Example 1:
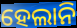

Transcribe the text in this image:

ହେଲାନି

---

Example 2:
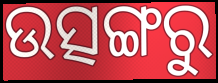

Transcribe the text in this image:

ଉତ୍ସଙ୍ଗରୁ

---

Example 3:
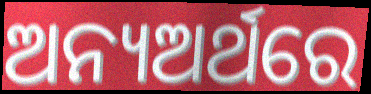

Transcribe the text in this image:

ଅନ୍ୟଅର୍ଥରେ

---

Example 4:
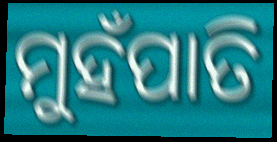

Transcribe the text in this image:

ମୁହଁପାତି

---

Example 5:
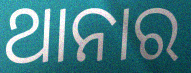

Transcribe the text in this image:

ଥାନାର